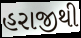
હરાજીથી